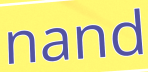
nand